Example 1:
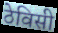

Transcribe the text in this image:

ठेविसी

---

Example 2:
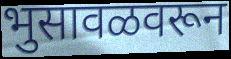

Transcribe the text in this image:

भुसावळवरून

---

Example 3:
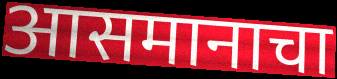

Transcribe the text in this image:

आसमानाचा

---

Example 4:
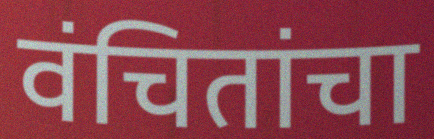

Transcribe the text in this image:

वंचितांचा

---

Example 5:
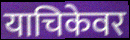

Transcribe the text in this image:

याचिकेवर